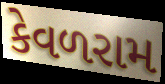
કેવળરામ